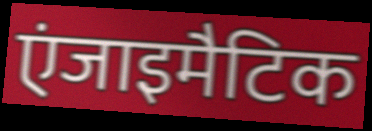
एंजाइमैटिक